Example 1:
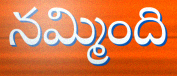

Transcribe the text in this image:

నమ్మింది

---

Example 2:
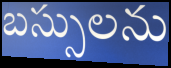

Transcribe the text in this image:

బస్సులను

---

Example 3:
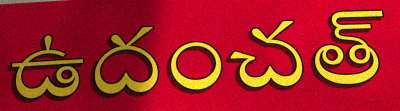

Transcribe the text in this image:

ఉదంచత్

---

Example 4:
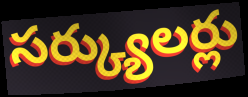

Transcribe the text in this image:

సర్క్యులర్లు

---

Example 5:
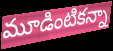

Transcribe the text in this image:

మూడింటికన్నా